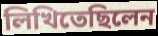
লিখিতেছিলেন